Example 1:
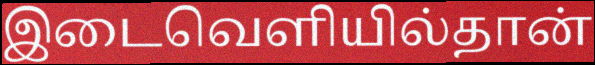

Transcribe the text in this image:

இடைவெளியில்தான்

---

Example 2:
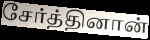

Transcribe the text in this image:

சேர்த்தினான்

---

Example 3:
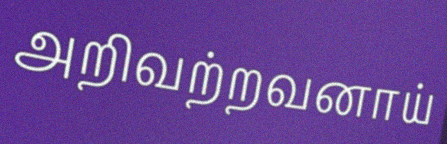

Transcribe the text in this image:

அறிவற்றவனாய்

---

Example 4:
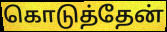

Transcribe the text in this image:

கொடுத்தேன்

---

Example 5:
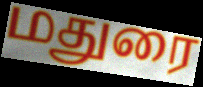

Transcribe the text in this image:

மதுரை